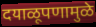
दयाळूपणामुळे